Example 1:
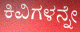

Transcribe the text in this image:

ಕಿವಿಗಳನ್ನೇ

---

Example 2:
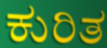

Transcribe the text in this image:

ಕುರಿತ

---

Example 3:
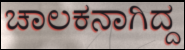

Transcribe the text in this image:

ಚಾಲಕನಾಗಿದ್ದ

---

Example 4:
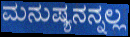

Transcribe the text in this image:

ಮನುಷ್ಯನನ್ನಲ್ಲ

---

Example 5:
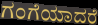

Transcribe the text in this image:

ಗಂಗೆಯಾದರೆ